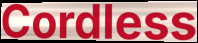
Cordless